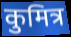
कुमित्र